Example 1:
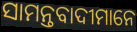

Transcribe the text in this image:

ସାମନ୍ତବାଦୀମାନେ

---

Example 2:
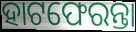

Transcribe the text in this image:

ହାଟଫେରନ୍ତା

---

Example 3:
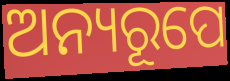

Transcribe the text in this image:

ଅନ୍ୟରୂପେ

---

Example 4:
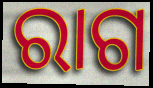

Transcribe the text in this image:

ରାଗ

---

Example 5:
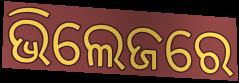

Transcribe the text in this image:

ଭିଲେଜରେ